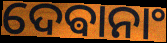
ଦେଵାନାଂ